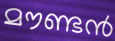
മൗണ്ടൻ